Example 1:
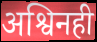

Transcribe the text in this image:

अश्विनही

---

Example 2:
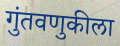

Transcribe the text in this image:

गुंतवणुकीला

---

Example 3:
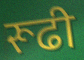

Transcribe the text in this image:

रूढी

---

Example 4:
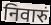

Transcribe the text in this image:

निवारुं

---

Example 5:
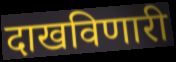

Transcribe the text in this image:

दाखविणारी